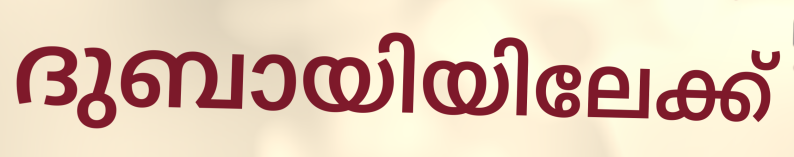
ദുബായിയിലേക്ക്